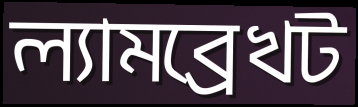
ল্যামব্রেখট